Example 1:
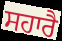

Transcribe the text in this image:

ਸਹਾਰੈ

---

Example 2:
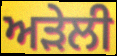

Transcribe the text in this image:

ਅੜੇਲੀ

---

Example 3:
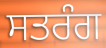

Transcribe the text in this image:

ਸਤਰੰਗ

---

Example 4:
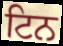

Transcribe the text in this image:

ਟਿਨ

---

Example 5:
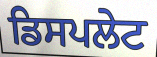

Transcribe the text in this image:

ਡਿਸਪਲੇਟ